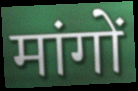
मांगों